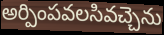
అర్పింపవలసివచ్చెను